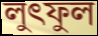
লুৎফুল